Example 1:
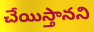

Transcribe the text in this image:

చేయిస్తానని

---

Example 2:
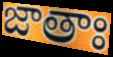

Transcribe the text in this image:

జాతాః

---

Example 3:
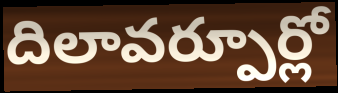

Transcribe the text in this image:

దిలావర్పూర్లో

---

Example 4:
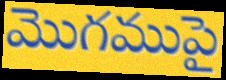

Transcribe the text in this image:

మొగముపై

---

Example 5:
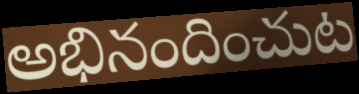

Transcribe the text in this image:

అభినందించుట